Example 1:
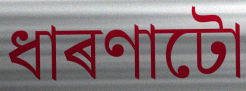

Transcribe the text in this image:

ধাৰণাটো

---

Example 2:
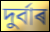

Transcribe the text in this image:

দুৰ্বাৰ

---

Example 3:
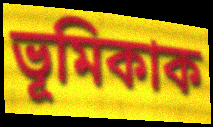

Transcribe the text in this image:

ভূমিকাক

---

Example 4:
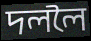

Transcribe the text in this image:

দললৈ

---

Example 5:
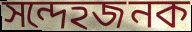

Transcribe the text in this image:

সন্দেহজনক